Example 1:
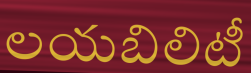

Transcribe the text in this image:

లయబిలిటీ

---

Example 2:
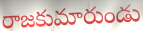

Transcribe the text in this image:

రాజకుమారుండు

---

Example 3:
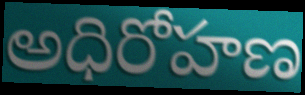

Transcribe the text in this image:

అధిరోహణ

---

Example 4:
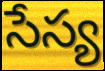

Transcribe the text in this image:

సేస్య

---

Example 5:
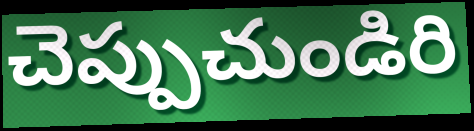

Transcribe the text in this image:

చెప్పుచుండిరి